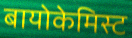
बायोकेमिस्ट